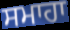
ਸਮਾਹਾ